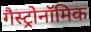
गैस्ट्रोनॉमिक